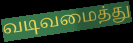
வடிவமைத்து